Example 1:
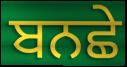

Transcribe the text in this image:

ਬਨਛੇ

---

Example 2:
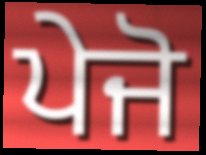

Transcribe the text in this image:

ਪੇਜੋ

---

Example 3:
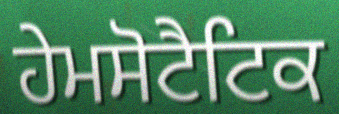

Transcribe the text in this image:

ਹੇਮਸੋਟੈਟਿਕ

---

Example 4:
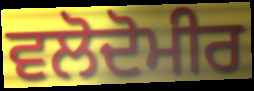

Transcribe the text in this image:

ਵਲੋਦੋਮੀਰ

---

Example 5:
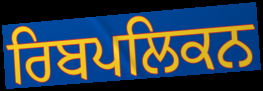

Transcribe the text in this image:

ਰਿਬਪਲਿਕਨ